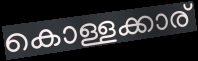
കൊള്ളക്കാര്